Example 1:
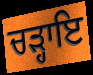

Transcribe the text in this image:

ਚੜ੍ਹਾਇ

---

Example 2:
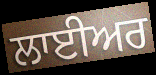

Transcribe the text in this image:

ਲਾਈਅਰ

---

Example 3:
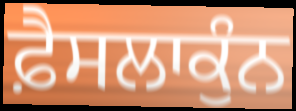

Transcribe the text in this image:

ਫ਼ੈਸਲਾਕੁੰਨ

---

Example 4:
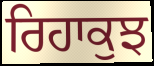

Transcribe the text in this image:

ਰਿਹਾਕੁਝ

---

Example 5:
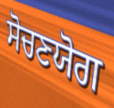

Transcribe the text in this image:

ਸੋਚਣਯੋਗ